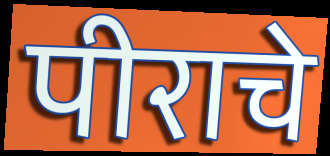
पीराचे